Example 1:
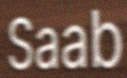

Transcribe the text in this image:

Saab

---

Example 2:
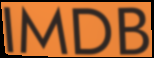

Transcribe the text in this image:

IMDB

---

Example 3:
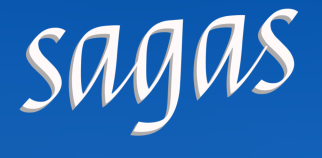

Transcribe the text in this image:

sagas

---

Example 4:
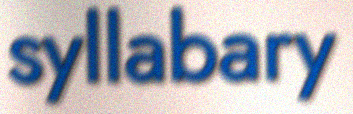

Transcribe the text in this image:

syllabary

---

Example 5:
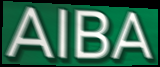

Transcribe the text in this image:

AIBA